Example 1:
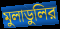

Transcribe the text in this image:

মুলাডুলির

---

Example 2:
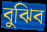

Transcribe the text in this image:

বুঝিব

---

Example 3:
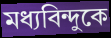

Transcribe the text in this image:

মধ্যবিন্দুকে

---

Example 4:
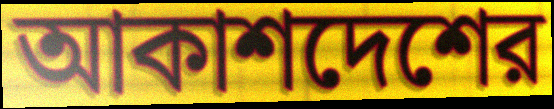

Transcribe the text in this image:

আকাশদেশের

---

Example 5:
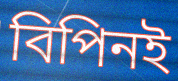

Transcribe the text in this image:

বিপিনই